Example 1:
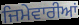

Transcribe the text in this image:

ਜਿਮੇਵਾਰੀਆਂ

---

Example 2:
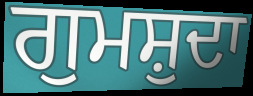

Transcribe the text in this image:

ਗੁਮਸ਼ੁਦਾ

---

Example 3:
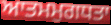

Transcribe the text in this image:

ਆਤਮਮੁਗਧਤਾ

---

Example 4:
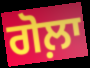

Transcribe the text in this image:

ਗੋਲ਼ਾ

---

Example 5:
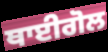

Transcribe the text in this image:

ਥਾਈਗੋਲ